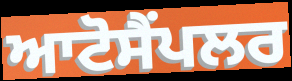
ਆਟੋਸੈਂਪਲਰ